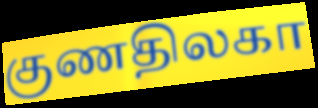
குணதிலகா